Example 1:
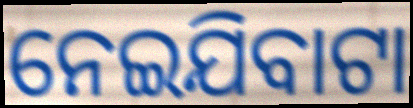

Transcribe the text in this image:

ନେଇଯିବାଟା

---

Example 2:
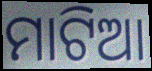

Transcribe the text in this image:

ମାଟିଆ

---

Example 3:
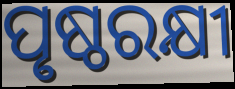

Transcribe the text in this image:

ପୃଷ୍ଠରକ୍ଷୀ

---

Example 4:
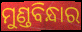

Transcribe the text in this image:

ମୁଣ୍ଡବିନ୍ଧାର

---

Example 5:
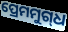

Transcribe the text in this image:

ପ୍ରେମମୁଗ୍‌ଧ